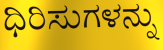
ಧಿರಿಸುಗಳನ್ನು